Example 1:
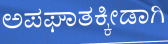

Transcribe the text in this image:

ಅಪಘಾತಕ್ಕೀಡಾಗಿ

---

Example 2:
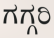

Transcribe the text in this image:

ಗಗ್ಗರಿ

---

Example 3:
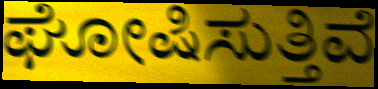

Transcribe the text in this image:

ಘೋಷಿಸುತ್ತಿವೆ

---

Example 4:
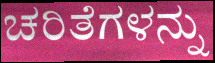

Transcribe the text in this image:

ಚರಿತೆಗಳನ್ನು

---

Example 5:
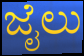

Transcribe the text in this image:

ಜೈಲು